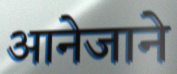
आनेजाने